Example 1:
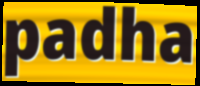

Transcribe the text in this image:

padha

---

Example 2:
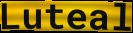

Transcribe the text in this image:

Luteal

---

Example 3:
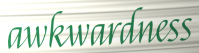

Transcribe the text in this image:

awkwardness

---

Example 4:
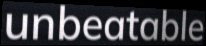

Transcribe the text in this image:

unbeatable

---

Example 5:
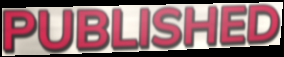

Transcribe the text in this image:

PUBLISHED